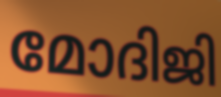
മോദിജി